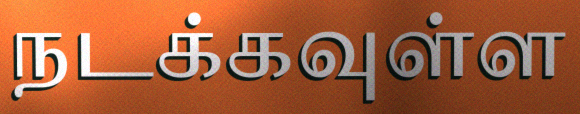
நடக்கவுள்ள